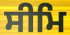
ਸੀਮਿ